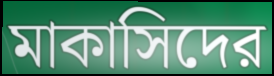
মাকাসিদের